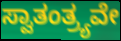
ಸ್ವಾತಂತ್ರ್ಯವೇ